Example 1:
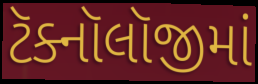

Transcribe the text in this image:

ટૅક્નૉલૉજીમાં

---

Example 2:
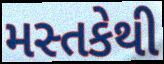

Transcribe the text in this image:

મસ્તકેથી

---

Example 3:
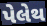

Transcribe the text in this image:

પેલેથ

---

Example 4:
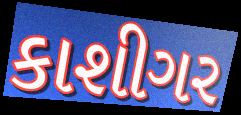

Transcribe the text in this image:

કાશીગર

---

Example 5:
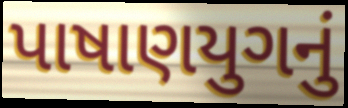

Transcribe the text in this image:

પાષાણયુગનું